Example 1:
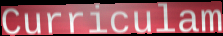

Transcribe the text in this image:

Curriculam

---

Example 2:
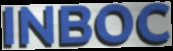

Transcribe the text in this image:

INBOC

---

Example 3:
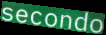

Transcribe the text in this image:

secondo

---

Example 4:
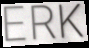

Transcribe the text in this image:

ERK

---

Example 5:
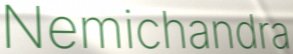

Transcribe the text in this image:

Nemichandra